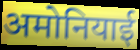
अमोनियाई